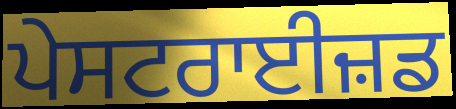
ਪੇਸਟਰਾਈਜ਼ਡ